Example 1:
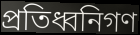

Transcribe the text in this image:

প্রতিধ্বনিগণ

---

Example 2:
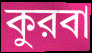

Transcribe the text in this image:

কুরবা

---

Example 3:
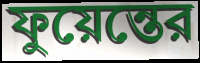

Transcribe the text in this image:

ফুয়েন্তের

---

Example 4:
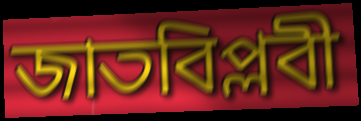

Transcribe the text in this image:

জাতবিপ্লবী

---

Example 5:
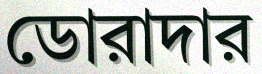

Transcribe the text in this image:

ডোরাদার